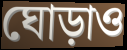
ঘোড়াও